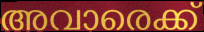
അവാരെക്ക്